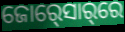
ଜୋର୍‍ସୋର୍‌ରେ